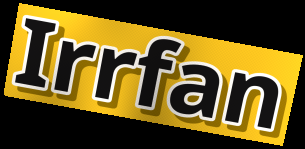
Irrfan